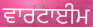
ਵਾਰਟਾਈਮ